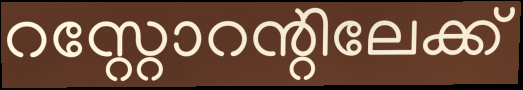
റസ്റ്റോറന്റിലേക്ക്